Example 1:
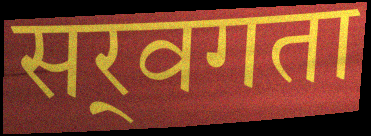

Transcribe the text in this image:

सर्वगता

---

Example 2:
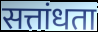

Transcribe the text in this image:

सत्तांधता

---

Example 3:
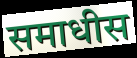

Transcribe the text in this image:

समाधीस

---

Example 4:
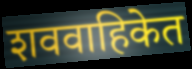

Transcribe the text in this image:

शववाहिकेत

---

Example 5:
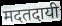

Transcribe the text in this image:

मदतदायी